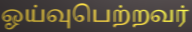
ஓய்வுபெற்றவர்